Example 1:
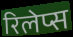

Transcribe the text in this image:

रिलेप्स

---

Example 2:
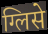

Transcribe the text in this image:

ग्लिसे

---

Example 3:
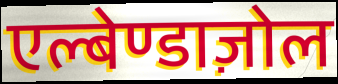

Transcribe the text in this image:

एल्बेण्डाज़ोल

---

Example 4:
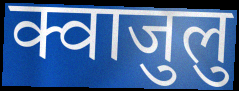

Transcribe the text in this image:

क्वाजुलु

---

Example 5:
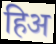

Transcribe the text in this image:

हिअ